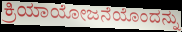
ಕ್ರಿಯಾಯೋಜನೆಯೊಂದನ್ನು